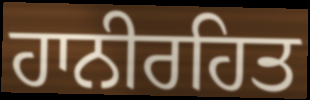
ਹਾਨੀਰਹਿਤ